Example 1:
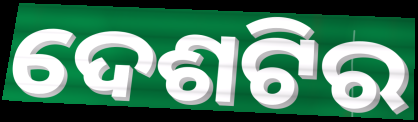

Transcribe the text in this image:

ଦେଶଟିର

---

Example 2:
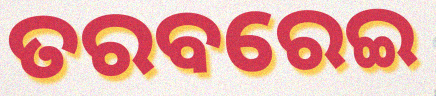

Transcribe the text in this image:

ତରବରେଇ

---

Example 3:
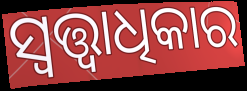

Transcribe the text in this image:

ସ୍ୱତ୍ତ୍ୱାଧିକାର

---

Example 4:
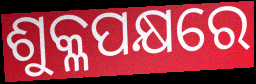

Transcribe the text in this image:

ଶୁକ୍ଳପକ୍ଷରେ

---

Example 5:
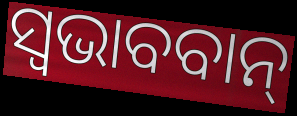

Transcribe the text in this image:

ସ୍ଵଭାବବାନ୍